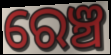
ରେଞ୍ଚ